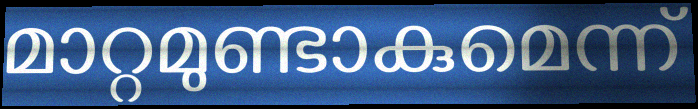
മാറ്റമുണ്ടാകുമെന്ന്